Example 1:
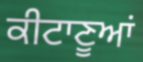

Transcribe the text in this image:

ਕੀਟਾਣੂਆਂ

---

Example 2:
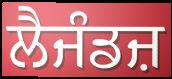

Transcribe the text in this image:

ਲੈਜੰਡਜ਼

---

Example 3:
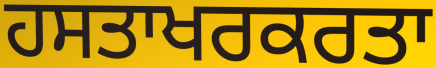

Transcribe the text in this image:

ਹਸਤਾਖਰਕਰਤਾ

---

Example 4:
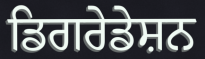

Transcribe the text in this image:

ਡਿਗਰੇਡੇਸ਼ਨ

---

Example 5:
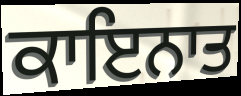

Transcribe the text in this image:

ਕਾਇਨਾਤ